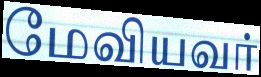
மேவியவர்